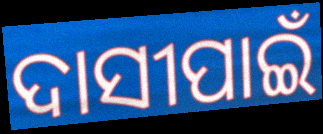
ଦାସୀପାଇଁ